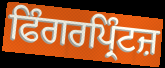
ਫਿੰਗਰਪ੍ਰਿੰਟਜ਼